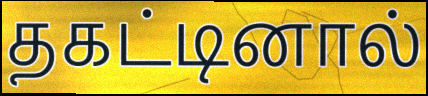
தகட்டினால்